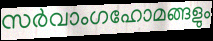
സർവാംഗഹോമങ്ങളും